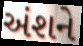
અંશને